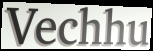
Vechhu